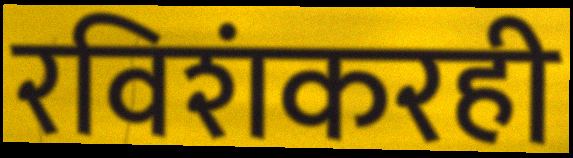
रविशंकरही